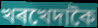
খৰখেদাকৈ